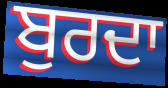
ਬੁਰਦਾ